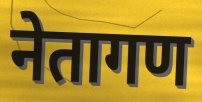
नेतागण